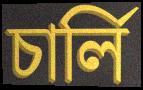
চার্লি